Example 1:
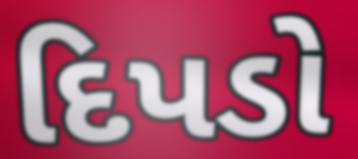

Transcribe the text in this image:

દિપડો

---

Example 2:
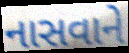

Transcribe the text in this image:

નાસવાને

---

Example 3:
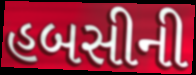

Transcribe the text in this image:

હબસીની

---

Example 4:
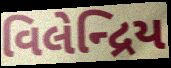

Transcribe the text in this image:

વિલેન્દ્રિય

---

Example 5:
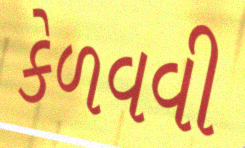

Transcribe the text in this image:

કેળવવી